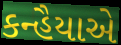
કન્હૈયાએ